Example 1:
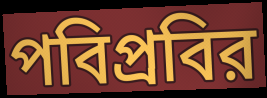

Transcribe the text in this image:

পবিপ্রবির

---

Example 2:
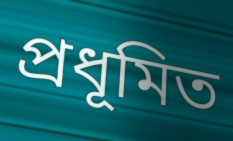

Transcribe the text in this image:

প্রধূমিত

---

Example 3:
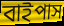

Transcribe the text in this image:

বাইপাস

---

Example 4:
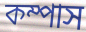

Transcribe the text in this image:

কম্পাস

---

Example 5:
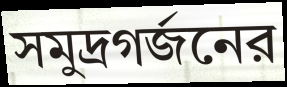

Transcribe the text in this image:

সমুদ্রগর্জনের